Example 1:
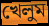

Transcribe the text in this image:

খেলুম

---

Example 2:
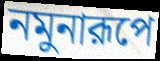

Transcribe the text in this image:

নমুনারূপে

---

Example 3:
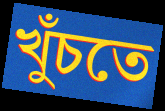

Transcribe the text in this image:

খুঁচতে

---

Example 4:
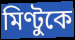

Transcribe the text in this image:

মিণ্টুকে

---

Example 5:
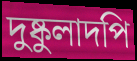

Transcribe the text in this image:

দুষ্কুলাদপি